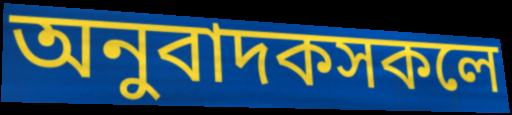
অনুবাদকসকলে